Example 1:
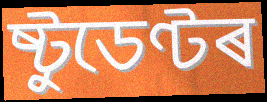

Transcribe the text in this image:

ষ্টুডেণ্টৰ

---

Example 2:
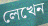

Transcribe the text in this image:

লেখেন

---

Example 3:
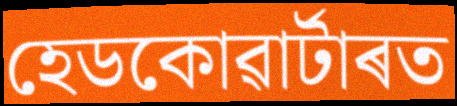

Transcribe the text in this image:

হেডকোৱাৰ্টাৰত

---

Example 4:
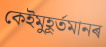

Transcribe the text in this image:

কেইমুহূৰ্তমানৰ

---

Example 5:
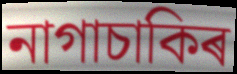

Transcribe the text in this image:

নাগাচাকিৰ